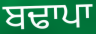
ਬਢਾਪਾ